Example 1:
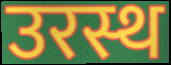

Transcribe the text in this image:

उरस्थ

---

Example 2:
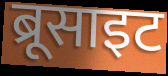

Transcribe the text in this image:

ब्रूसाइट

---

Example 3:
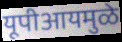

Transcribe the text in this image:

यूपीआयमुळे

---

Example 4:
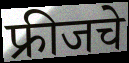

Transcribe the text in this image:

फ्रीजचे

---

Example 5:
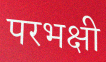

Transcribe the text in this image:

परभक्षी